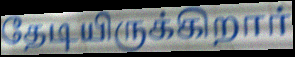
தேடியிருக்கிறார்